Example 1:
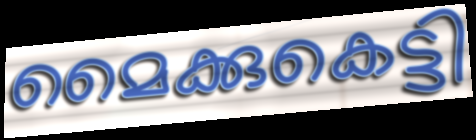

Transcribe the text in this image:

മൈക്കുകെട്ടി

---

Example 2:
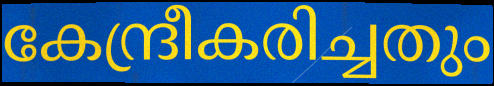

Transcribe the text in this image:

കേന്ദ്രീകരിച്ചതും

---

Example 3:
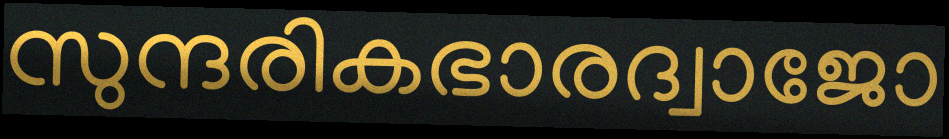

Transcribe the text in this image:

സുന്ദരികഭാരദ്വാജോ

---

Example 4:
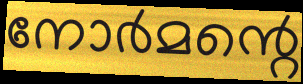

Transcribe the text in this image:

നോർമന്റെ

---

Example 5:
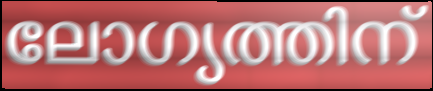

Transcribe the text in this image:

ലോഗ്യത്തിന്